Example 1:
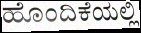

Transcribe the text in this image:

ಹೊಂದಿಕೆಯಲ್ಲಿ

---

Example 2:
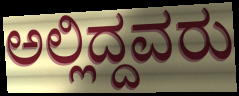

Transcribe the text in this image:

ಅಲ್ಲಿದ್ದವರು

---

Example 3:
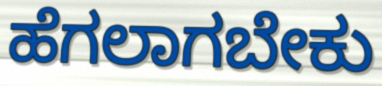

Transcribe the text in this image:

ಹೆಗಲಾಗಬೇಕು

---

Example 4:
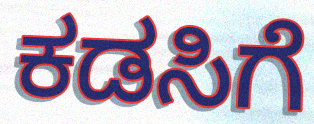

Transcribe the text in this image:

ಕಡಸಿಗೆ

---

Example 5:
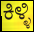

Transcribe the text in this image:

ಕಿಳ್ಳಿ